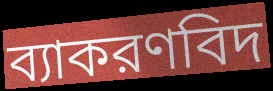
ব্যাকরণবিদ